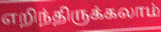
எறிந்திருக்கலாம்